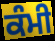
ਕੰਮੀ